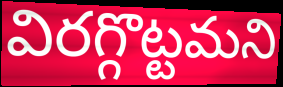
విరగ్గొట్టమని